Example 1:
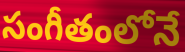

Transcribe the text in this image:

సంగీతంలోనే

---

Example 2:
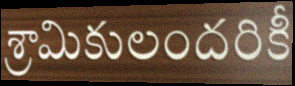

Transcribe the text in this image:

శ్రామికులందరికీ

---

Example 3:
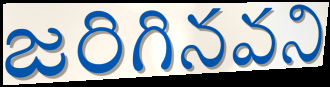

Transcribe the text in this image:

జరిగినవని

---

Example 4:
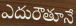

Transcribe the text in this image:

ఎదురౌతూనే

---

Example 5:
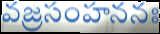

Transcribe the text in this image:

వజ్రసంహననః